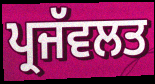
ਪ੍ਰਜੱਵਲਤ